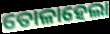
ତୋଳାହେଲା